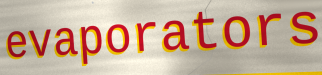
evaporators